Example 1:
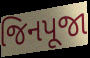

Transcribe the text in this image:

જિનપૂજા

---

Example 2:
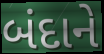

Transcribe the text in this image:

બંદાને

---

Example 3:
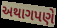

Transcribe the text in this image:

અથાગપણે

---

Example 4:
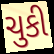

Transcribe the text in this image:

ચુકી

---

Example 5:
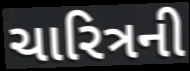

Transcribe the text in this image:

ચારિત્રની